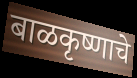
बाळकृष्णाचे